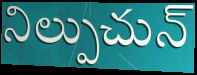
నిల్పుచున్